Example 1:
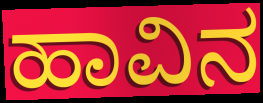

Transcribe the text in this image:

ಹಾವಿನ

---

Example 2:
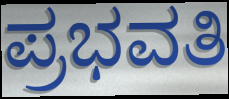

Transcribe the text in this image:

ಪ್ರಭವತಿ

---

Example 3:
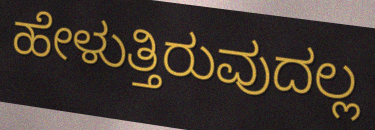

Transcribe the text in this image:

ಹೇಳುತ್ತಿರುವುದಲ್ಲ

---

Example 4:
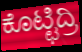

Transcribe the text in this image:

ಕೊಟ್ಟಿದ್ರಿ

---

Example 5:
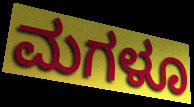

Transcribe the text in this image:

ಮಗಳೂ